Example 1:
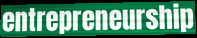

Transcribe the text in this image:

entrepreneurship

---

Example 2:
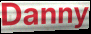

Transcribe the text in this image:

Danny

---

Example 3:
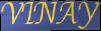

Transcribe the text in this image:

VINAY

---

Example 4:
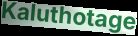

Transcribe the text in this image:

Kaluthotage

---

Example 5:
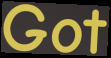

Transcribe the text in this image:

Got